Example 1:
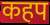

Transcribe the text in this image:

कहप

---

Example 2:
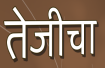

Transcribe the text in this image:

तेजीचा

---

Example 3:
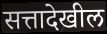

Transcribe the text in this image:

सत्तादेखील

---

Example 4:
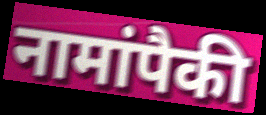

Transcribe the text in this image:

नामांपैकी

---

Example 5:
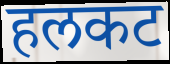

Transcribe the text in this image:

हलकट